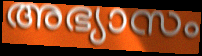
അഭ്യാസം